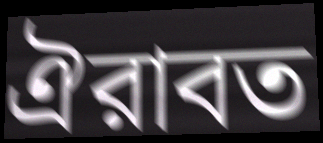
ঐরাবত